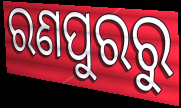
ରଣପୁରରୁ